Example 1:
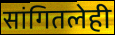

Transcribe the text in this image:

सांगितलेही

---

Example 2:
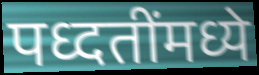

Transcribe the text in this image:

पध्दतींमध्ये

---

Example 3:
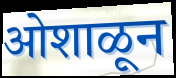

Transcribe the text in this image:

ओशाळून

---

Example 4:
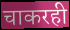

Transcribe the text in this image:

चाकरही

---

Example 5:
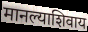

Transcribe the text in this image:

मानल्याशिवाय